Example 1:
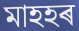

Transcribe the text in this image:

মাহহৰ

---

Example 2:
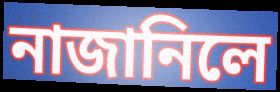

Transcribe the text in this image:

নাজানিলে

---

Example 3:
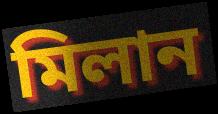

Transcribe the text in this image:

মিলান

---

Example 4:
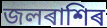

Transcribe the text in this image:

জলৰাশিৰ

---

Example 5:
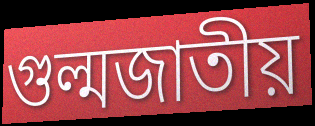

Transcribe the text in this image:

গুল্মজাতীয়